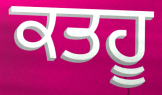
ਕਤਹੂ